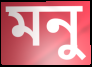
মনু